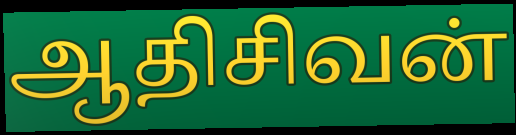
ஆதிசிவன்